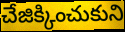
చేజిక్కించుకుని